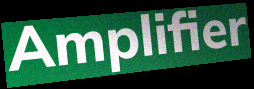
Amplifier